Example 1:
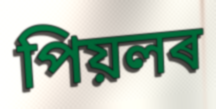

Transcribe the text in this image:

পিয়লৰ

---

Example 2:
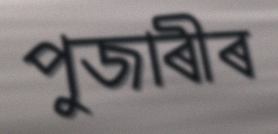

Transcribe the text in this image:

পুজাৰীৰ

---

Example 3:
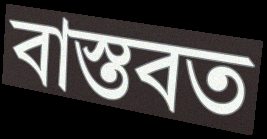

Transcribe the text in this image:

বাস্তবত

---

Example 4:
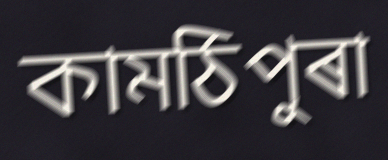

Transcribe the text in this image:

কামঠিপুৰা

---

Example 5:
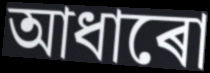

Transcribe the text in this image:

আধাৰো